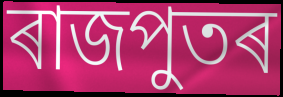
ৰাজপুতৰ